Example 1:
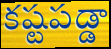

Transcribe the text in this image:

కష్టపడ్డా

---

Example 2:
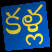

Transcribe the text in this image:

కళ్ల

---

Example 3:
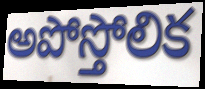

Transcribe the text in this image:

అపోస్తోలిక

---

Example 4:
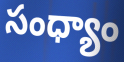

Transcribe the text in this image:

సంధ్యాం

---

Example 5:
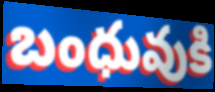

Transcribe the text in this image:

బంధువుకి